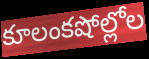
కూలంకషోల్లోల